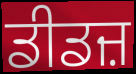
ਡੀਡਜ਼